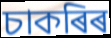
চাকৰিৰ